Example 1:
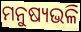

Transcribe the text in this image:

ମନୁଷ୍ୟଭଳି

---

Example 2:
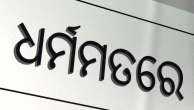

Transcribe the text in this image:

ଧର୍ମମତରେ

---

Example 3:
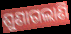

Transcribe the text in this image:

ଶୁଣାଗଲାଣି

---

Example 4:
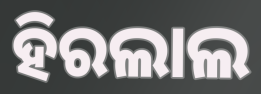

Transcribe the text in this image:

ହିରଲାଲ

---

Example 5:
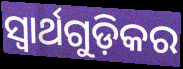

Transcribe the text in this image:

ସ୍ୱାର୍ଥଗୁଡ଼ିକର